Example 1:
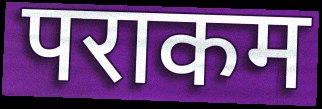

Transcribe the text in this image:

पराकम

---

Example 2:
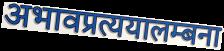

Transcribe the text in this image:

अभावप्रत्ययालम्बना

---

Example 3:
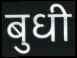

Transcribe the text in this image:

बुधी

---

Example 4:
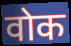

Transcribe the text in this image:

वोक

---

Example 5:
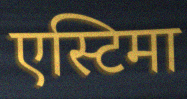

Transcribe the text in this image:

एस्टिमा